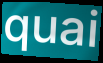
quai